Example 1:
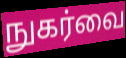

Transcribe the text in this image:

நுகர்வை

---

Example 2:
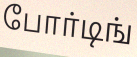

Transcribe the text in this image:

போர்டிங்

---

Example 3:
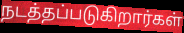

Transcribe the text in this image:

நடத்தப்படுகிறார்கள்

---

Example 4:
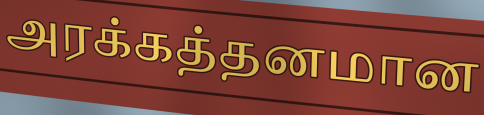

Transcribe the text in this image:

அரக்கத்தனமான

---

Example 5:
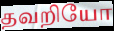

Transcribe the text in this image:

தவறியோ